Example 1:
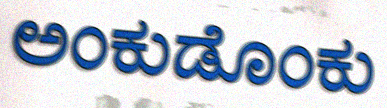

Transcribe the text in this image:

ಅಂಕುಡೊಂಕು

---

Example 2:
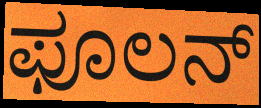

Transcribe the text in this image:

ಫೂಲನ್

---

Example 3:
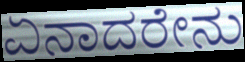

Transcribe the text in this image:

ಏನಾದರೇನು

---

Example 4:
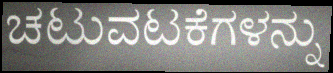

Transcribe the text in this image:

ಚಟುವಟಕೆಗಳನ್ನು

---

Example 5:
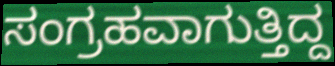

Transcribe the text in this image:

ಸಂಗ್ರಹವಾಗುತ್ತಿದ್ದ